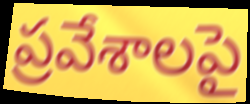
ప్రవేశాలపై